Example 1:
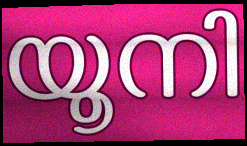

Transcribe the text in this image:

യൂനി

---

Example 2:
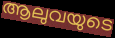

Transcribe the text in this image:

ആലുവയുടെ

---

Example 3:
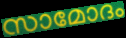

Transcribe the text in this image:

സാമോദം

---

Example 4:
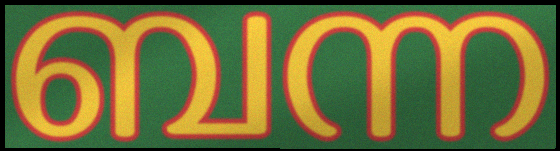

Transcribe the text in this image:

ബന്ന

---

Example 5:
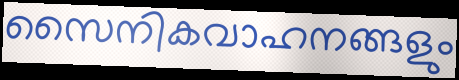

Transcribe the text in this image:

സൈനികവാഹനങ്ങളും